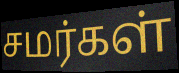
சமர்கள்